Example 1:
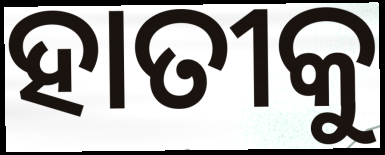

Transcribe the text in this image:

ହାତୀକୁ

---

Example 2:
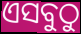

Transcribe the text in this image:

ଏସବୁଠୁ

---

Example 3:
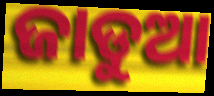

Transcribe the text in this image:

ଜାଡୁଆ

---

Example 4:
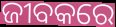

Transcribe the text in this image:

ଜୀବକରେ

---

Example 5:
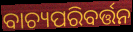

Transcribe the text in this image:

ବାଚ୍ୟପରିବର୍ତ୍ତନ